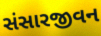
સંસારજીવન